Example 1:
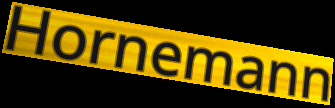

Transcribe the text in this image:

Hornemann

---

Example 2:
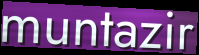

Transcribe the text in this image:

muntazir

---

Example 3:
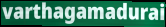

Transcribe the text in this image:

varthagamadurai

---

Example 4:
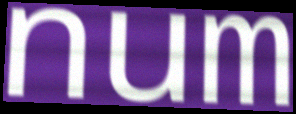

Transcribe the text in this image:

num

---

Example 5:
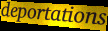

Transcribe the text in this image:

deportations